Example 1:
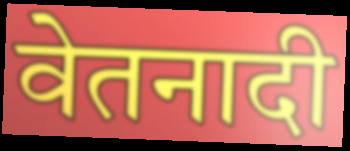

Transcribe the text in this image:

वेतनादी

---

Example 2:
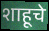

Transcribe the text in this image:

शाहूचे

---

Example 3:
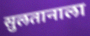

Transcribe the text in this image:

सुलतानाला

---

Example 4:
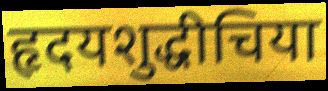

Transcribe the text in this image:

हृदयशुद्धीचिया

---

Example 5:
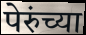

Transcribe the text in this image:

पेरुंच्या